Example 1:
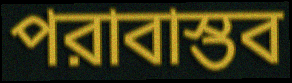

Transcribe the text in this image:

পরাবাস্তব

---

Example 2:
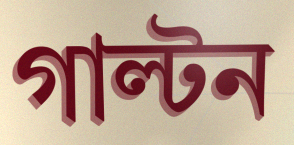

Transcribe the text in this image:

গাল্টন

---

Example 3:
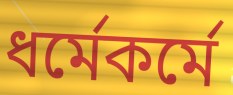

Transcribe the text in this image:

ধর্মেকর্মে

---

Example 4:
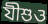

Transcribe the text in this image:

যীশুও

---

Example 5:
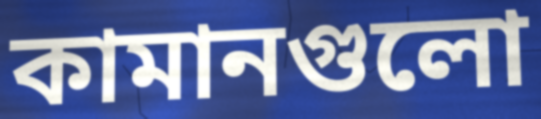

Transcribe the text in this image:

কামানগুলো